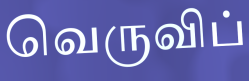
வெருவிப்